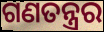
ଗଣତନ୍ତ୍ରର